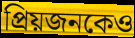
প্রিয়জনকেও